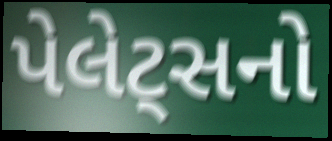
પેલેટ્સનો